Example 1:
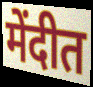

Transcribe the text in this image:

मेंदीत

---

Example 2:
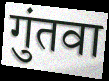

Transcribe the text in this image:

गुंतवा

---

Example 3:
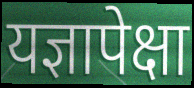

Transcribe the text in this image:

यज्ञापेक्षा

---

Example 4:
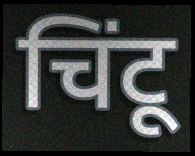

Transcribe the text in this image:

चिंटू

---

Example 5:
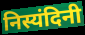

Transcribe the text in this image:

निस्यंदिनी